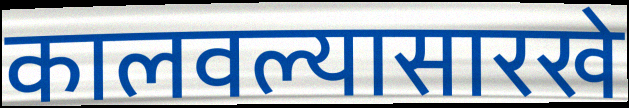
कालवल्यासारखे